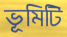
ভূমিটি